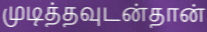
முடித்தவுடன்தான்